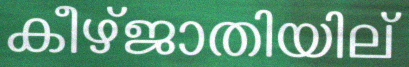
കീഴ്ജാതിയില്